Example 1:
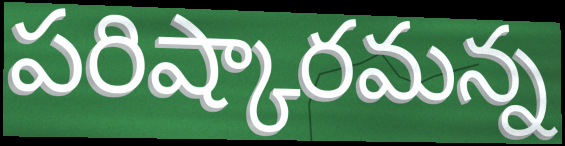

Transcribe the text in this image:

పరిష్కారమన్న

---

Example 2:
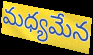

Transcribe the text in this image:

మధ్యమేన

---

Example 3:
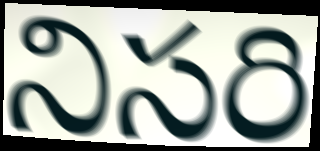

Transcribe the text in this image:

నిసరి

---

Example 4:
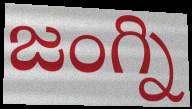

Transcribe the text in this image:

జంగ్ని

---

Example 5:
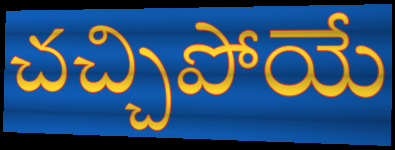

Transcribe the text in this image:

చచ్చిపోయే